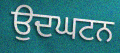
ਉਦਘਟਨ